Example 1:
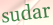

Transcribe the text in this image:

sudar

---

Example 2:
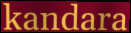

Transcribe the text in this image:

kandara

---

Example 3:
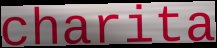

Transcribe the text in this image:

charita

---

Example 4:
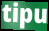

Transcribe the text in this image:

tipu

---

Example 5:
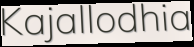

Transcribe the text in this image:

Kajallodhia